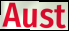
Aust